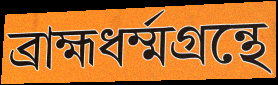
ব্রাহ্মধর্ম্মগ্রন্থে